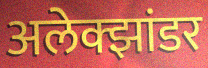
अलेक्झांडर